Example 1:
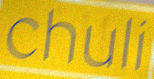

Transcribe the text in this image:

chuli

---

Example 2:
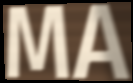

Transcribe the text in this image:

MA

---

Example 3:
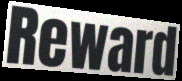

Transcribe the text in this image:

Reward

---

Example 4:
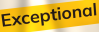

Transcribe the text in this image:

Exceptional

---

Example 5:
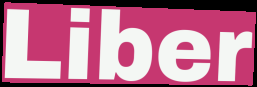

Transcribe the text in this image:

Liber